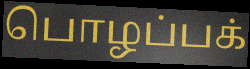
பொழப்பக்